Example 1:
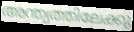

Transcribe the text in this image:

അന്ത്യത്തിലേക്കു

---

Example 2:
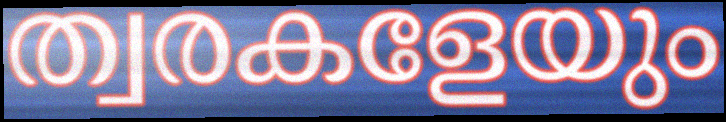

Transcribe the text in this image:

ത്വരകളേയും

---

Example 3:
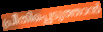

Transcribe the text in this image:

പ്രീതിപ്പെടുത്താൻ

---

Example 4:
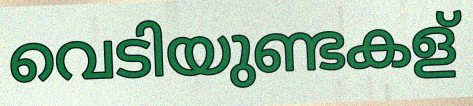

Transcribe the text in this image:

വെടിയുണ്ടകള്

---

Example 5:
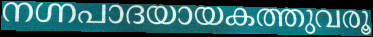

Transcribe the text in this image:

നഗ്നപാദയായകത്തുവരൂ